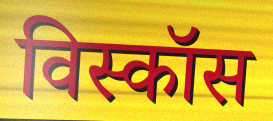
विस्कॉस